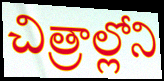
చిత్రాల్లోని